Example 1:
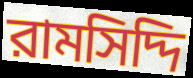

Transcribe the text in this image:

রামসিদ্দি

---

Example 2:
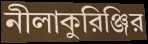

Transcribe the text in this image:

নীলাকুরিঞ্জির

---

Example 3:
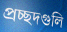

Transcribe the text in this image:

প্রচ্ছদগুলি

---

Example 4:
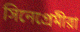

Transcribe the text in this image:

সিনেপ্রেমীরা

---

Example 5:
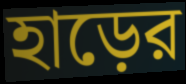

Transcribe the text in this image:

হাড়ের